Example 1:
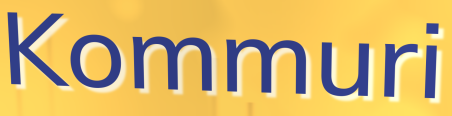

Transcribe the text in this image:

Kommuri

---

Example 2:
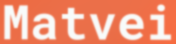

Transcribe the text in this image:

Matvei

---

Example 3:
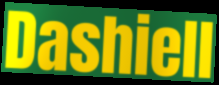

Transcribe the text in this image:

Dashiell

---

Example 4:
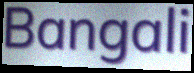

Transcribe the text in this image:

Bangali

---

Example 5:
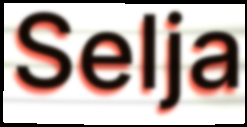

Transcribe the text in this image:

Selja